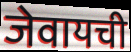
जेवायची